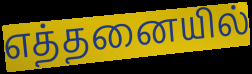
எத்தனையில்